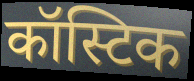
कॉस्टिक